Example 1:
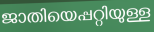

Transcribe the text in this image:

ജാതിയെപ്പറ്റിയുള്ള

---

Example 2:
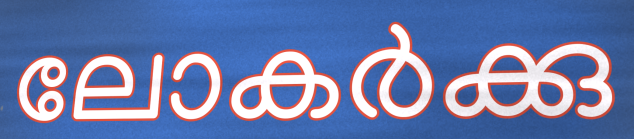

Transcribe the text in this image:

ലോകർക്കു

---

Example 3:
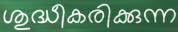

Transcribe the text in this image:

ശുദ്ധീകരിക്കുന്ന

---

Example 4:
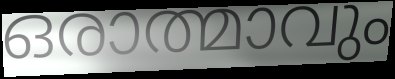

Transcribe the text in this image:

ഒരാത്മാവും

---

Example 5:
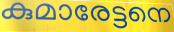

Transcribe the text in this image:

കുമാരേട്ടനെ